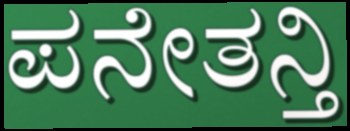
ಪನೇತನ್ತಿ